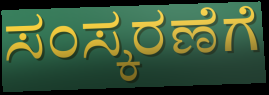
ಸಂಸ್ಕರಣೆಗೆ